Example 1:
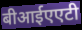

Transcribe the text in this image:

बीआईएएटी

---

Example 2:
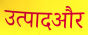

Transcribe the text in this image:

उत्पादऔर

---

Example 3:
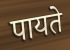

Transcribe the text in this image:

पायते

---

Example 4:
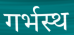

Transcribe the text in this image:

गर्भस्‍थ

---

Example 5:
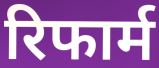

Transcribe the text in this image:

रिफार्म